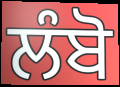
ਲੰਬੋ